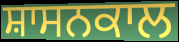
ਸ਼ਾਸਨਕਾਲ